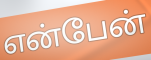
என்பேன்